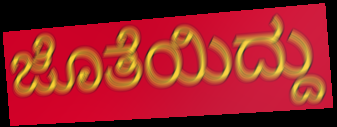
ಜೊತೆಯಿದ್ದು